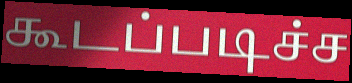
கூடப்படிச்ச